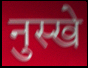
नुस्खे